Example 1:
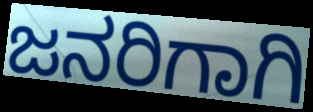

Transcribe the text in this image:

ಜನರಿಗಾಗಿ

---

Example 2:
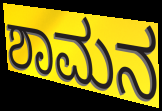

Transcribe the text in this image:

ಶಾಮನ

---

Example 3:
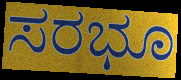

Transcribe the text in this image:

ಸರಭೂ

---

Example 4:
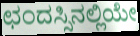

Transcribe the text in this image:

ಛಂದಸ್ಸಿನಲ್ಲಿಯೇ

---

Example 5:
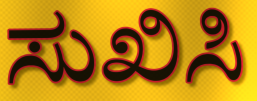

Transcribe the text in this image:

ಸುಖಿಸಿ